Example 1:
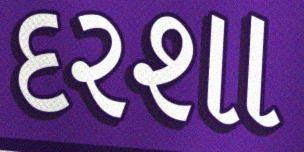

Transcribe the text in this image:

દરશા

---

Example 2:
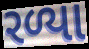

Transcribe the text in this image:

રળ્યા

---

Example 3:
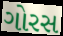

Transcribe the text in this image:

ગોરસ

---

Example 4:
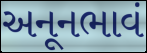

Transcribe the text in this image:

અનૂનભાવં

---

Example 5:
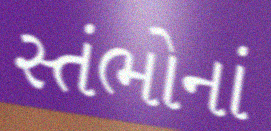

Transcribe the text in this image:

સ્તંભોનાં